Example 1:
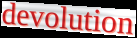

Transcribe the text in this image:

devolution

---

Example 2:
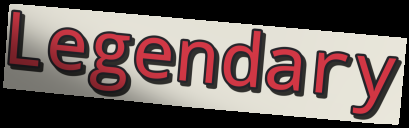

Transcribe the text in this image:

Legendary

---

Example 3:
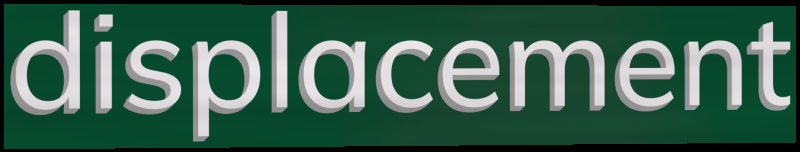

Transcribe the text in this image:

displacement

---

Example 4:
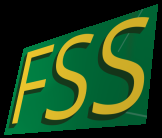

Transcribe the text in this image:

FSS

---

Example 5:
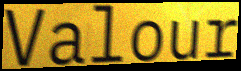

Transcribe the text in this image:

Valour